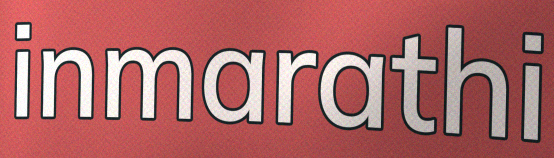
inmarathi